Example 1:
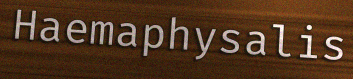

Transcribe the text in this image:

Haemaphysalis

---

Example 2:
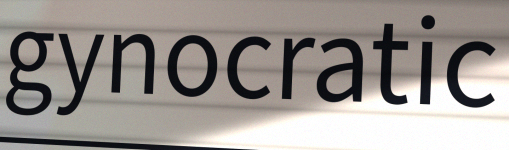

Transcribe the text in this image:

gynocratic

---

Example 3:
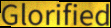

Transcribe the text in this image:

Glorified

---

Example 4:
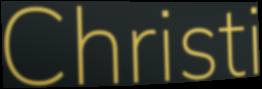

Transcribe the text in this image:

Christi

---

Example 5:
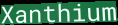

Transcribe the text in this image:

Xanthium